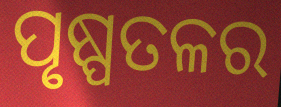
ପୃଷ୍ପତଳର